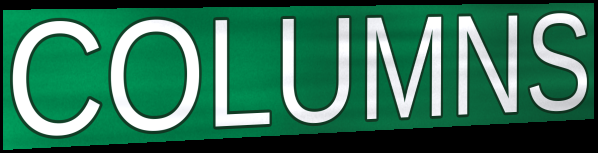
COLUMNS